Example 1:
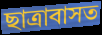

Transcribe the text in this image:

ছাত্ৰাবাসত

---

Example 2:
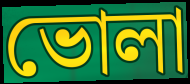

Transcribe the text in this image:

ভোলা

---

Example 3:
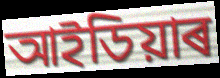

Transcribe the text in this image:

আইডিয়াৰ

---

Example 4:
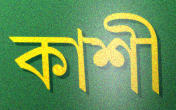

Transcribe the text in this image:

কাশী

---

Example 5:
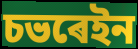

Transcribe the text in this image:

চভৰেইন